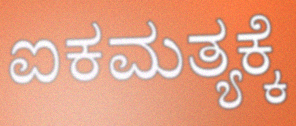
ಐಕಮತ್ಯಕ್ಕೆ